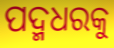
ପଦ୍ମଧରକୁ